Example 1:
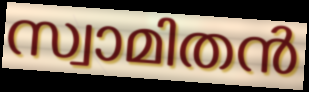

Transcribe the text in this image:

സ്വാമിതൻ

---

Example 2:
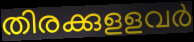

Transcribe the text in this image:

തിരക്കുളളവർ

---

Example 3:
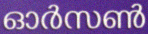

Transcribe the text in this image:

ഓർസൺ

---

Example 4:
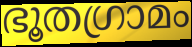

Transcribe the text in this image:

ഭൂതഗ്രാമം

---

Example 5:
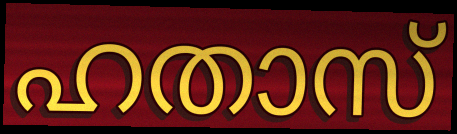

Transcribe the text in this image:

ഹതാസ്